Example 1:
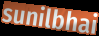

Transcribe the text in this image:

sunilbhai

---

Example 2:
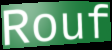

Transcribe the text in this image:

Rouf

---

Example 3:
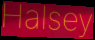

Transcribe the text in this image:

Halsey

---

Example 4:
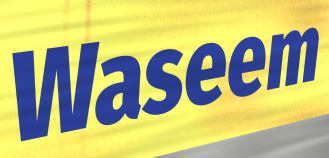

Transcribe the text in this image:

Waseem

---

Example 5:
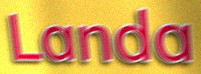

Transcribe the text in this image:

Landa